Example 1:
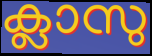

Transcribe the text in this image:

ക്ലാസു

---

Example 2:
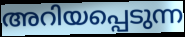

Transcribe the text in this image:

അറിയപ്പെടുന്ന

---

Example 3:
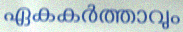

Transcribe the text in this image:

ഏകകർത്താവും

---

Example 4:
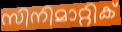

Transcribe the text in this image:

സിനിമാറ്റിക്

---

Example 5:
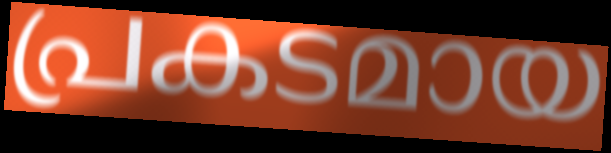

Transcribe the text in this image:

പ്രകടമായ